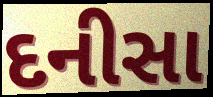
દનીસા